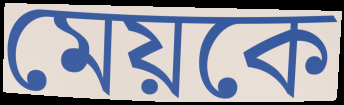
মেয়কে